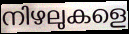
നിഴലുകളെ